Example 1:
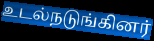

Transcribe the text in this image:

உடல்நடுங்கினர்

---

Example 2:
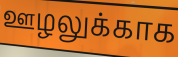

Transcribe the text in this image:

ஊழலுக்காக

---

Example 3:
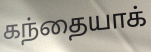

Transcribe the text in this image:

கந்தையாக்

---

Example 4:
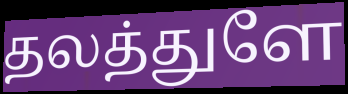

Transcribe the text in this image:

தலத்துளே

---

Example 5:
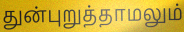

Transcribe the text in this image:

துன்புறுத்தாமலும்